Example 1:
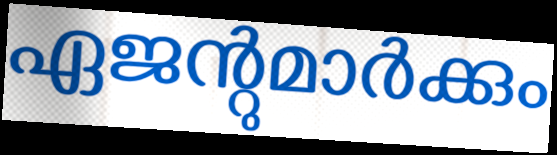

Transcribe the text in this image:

ഏജന്റുമാർക്കും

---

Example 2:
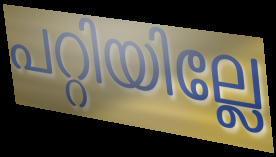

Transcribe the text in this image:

പറ്റിയില്ലേ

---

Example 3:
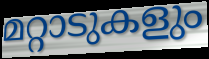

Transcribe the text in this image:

മറ്റാടുകളും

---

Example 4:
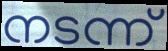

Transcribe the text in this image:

നടന്ന്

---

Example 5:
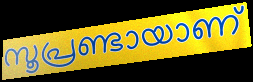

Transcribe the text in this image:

സൂപ്രണ്ടായാണ്